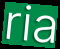
ria